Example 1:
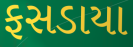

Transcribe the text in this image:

ફસડાયા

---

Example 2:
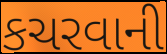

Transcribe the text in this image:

કચરવાની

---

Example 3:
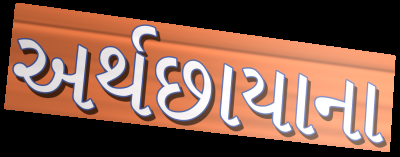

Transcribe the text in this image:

અર્થછાયાના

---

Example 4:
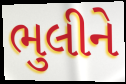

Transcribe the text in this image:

ભુલીને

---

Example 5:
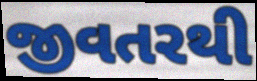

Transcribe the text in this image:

જીવતરથી